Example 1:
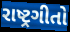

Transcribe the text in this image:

રાષ્ટ્રગીતો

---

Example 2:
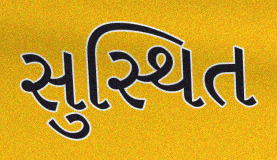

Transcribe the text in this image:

સુસ્થિત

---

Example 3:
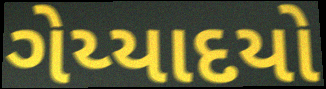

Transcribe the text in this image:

ગેય્યાદયો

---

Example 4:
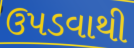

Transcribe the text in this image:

ઉપડવાથી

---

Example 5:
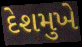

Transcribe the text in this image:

દેશમુખે